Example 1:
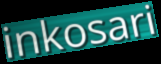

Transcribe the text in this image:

inkosari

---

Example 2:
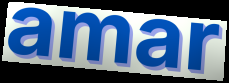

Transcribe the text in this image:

amar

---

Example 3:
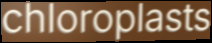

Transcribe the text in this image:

chloroplasts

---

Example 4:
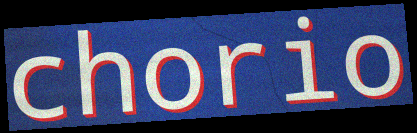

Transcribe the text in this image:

chorio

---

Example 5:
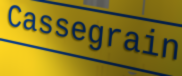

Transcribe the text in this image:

Cassegrain